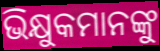
ଭିକ୍ଷୁକମାନଙ୍କୁ